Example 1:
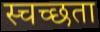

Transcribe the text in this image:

स्चच्छता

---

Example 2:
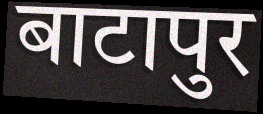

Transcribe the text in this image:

बाटापुर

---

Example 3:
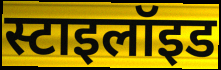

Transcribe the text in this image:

स्टाइलॉइड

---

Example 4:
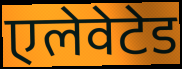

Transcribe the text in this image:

एलेवेटेड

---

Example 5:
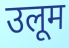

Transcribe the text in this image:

उलूम